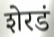
शेरडं